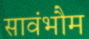
सावंभौम